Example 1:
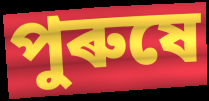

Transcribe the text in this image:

পুৰুষে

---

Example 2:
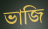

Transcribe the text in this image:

ভাজি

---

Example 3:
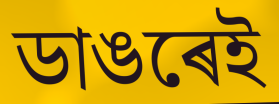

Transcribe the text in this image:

ডাঙৰেই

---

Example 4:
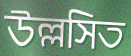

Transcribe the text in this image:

উল্লসিত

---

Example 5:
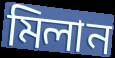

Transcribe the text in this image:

মিলান